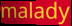
malady